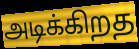
அடிக்கிறத